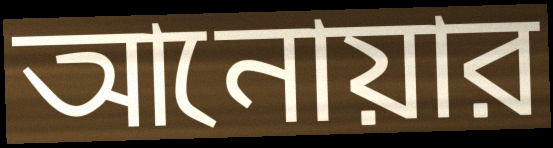
আনোয়ার